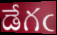
డేగఁ